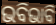
ଭବିଭାବି